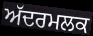
ਅੱਦਰਮਲਕ